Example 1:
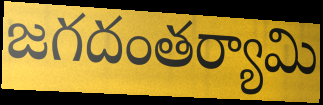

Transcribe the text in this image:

జగదంతర్యామి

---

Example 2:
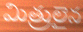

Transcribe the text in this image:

మిత్రులైన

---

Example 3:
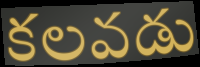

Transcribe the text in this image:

కలవడు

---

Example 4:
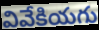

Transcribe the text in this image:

వివేకియగు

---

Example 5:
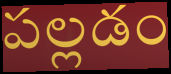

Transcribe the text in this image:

పల్లడం